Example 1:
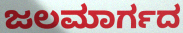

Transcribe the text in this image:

ಜಲಮಾರ್ಗದ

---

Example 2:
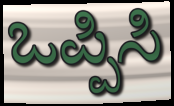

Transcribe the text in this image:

ಒಪ್ಪಿಸಿ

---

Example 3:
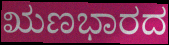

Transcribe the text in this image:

ಋಣಭಾರದ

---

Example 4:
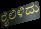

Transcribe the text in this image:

ರೈಲಿಳಿದು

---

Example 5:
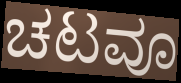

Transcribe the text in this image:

ಚಟವೂ